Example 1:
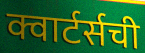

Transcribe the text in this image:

क्वार्टर्सची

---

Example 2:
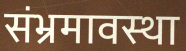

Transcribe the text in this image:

संभ्रमावस्था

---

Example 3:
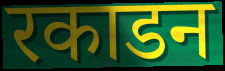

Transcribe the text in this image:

रकाडन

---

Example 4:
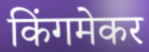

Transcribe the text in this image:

किंगमेकर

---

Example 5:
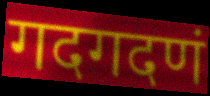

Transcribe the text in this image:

गदगदणं